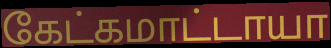
கேட்கமாட்டாயா